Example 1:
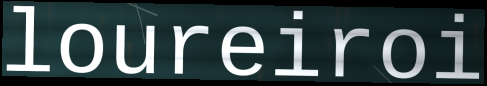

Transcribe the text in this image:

loureiroi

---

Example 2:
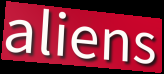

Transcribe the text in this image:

aliens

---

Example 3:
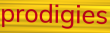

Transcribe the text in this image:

prodigies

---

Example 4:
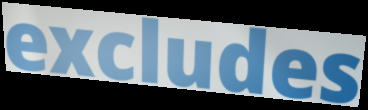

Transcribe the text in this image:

excludes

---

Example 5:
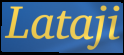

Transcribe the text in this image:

Lataji